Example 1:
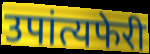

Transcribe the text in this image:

उपांत्यफेरी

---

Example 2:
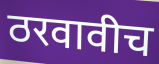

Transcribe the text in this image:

ठरवावीच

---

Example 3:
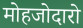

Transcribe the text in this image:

मोहजोदारो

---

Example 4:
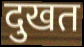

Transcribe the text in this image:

दुखत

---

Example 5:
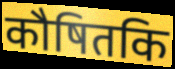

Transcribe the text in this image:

कौषितकि